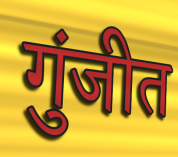
गुंजीत